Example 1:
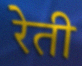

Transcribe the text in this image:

रेती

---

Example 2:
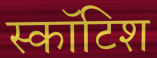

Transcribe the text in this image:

स्कॉटिश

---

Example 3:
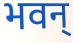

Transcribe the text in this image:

भवन्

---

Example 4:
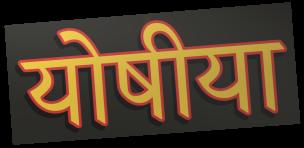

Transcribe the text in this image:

योषीया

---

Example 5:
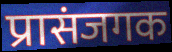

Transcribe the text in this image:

प्रासंजगक